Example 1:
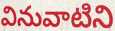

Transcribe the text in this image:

వినువాటిని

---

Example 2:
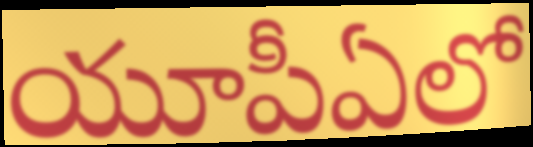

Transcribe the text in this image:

యూపీఏలో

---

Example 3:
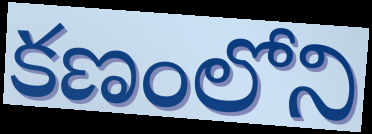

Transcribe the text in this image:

కణంలోని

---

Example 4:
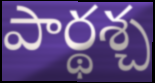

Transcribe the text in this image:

పార్థశ్చ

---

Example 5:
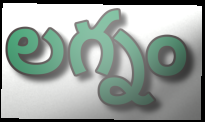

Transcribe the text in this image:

లగ్నం